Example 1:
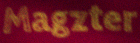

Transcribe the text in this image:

Magzter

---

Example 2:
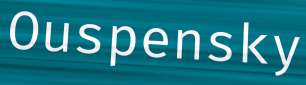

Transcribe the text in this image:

Ouspensky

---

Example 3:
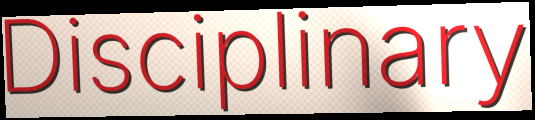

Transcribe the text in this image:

Disciplinary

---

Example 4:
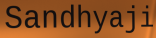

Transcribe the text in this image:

Sandhyaji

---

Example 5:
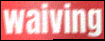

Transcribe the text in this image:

waiving